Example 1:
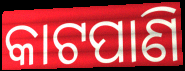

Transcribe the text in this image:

କାଟପାଣି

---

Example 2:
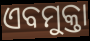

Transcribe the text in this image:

ଏବମୁକ୍ତା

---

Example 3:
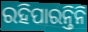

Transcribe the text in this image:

ରହିପାରନ୍ତିନି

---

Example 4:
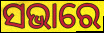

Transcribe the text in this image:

ସଭାରେ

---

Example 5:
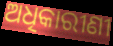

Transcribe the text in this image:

ଅଧିକାରୀଣୀ